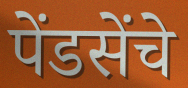
पेंडसेंचे